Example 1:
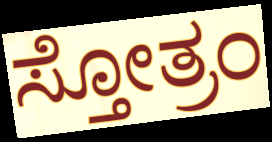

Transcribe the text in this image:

ಸ್ತೋತ್ರಂ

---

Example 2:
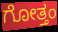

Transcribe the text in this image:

ಗೋತ್ತಂ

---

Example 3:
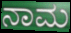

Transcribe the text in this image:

ನಾಮ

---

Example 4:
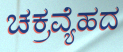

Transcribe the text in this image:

ಚಕ್ರವ್ಯೆಹದ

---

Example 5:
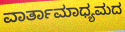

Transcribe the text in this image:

ವಾರ್ತಾಮಾಧ್ಯಮದ